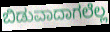
ಬಿಡುವಾದಾಗಲೆಲ್ಲ